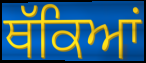
ਥੱਕਿਆਂ